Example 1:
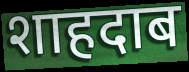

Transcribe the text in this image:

शाहदाब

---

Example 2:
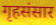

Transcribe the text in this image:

गृहसंसार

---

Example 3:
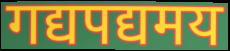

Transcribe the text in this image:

गद्यपद्यमय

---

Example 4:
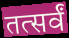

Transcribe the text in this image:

तत्सर्वं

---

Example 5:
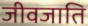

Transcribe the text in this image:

जीवजाति